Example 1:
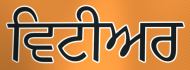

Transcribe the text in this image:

ਵਿਟੀਅਰ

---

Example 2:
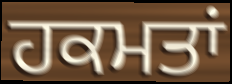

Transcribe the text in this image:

ਹਕਮਤਾਂ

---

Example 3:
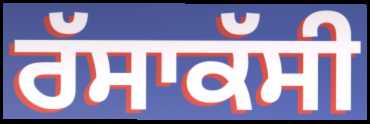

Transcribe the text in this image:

ਰੱਸਾਕੱਸੀ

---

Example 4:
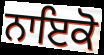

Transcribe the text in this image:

ਨਾਇਕੋ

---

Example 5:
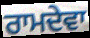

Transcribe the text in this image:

ਰਾਮਦੇਵਾ